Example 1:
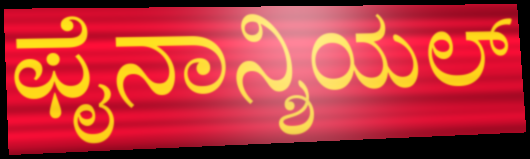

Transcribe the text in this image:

ಫೈನಾನ್ಶಿಯಲ್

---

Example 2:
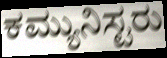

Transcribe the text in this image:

ಕಮ್ಯುನಿಸ್ಟರು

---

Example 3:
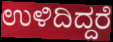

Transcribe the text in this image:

ಉಳಿದಿದ್ದರೆ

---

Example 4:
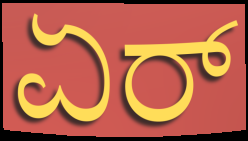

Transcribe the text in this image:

ಏರ್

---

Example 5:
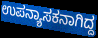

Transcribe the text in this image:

ಉಪನ್ಯಾಸಕನಾಗಿದ್ದ